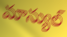
మాన్యుల్